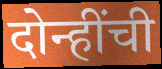
दोन्हींची